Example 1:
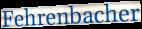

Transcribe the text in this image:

Fehrenbacher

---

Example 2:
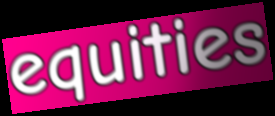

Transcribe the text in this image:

equities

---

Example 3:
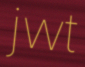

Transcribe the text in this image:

jwt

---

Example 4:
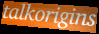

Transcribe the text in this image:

talkorigins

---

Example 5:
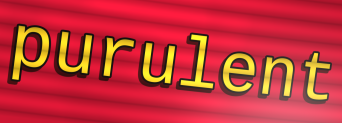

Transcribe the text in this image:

purulent